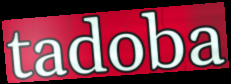
tadoba